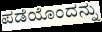
ಪಡೆಯೊಂದನ್ನು